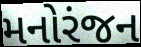
મનોરંજન